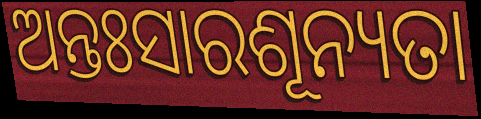
ଅନ୍ତଃସାରଶୂନ୍ୟତା